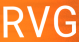
RVG